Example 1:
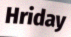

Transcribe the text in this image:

Hriday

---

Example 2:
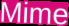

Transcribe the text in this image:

Mime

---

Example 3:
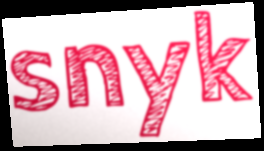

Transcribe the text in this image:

snyk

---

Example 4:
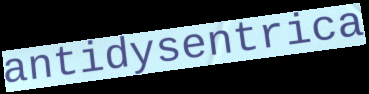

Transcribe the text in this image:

antidysentrica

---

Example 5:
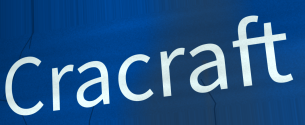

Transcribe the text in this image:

Cracraft